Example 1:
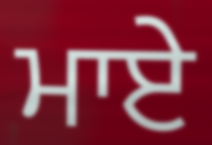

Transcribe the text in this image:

ਮਾਏ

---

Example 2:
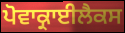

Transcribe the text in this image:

ਪੋਵਾਕ੍ਰਾਈਲੈਕਸ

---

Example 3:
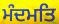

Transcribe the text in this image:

ਮੰਦਮਤਿ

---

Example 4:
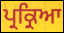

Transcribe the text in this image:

ਪ੍ਰਕ੍ਰਿਆ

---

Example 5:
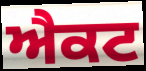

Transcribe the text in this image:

ਐਕਟ